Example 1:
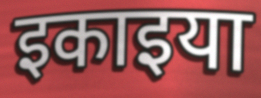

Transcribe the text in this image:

इकाइया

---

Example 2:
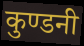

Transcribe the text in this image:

कुण्डनी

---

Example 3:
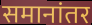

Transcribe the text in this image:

समानांतर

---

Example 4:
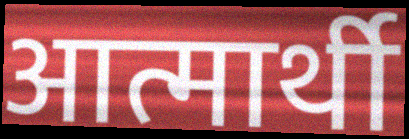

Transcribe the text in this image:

आत्मार्थी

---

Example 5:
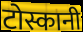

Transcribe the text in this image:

टोस्कानी